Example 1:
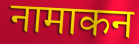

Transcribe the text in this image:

नामाकन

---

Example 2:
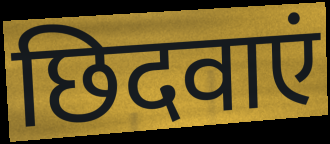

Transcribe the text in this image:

छिदवाएं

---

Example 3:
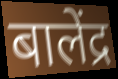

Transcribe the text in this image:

बालेंद्र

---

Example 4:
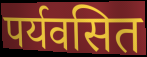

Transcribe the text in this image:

पर्यवसित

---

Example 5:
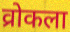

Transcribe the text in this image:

व्रोकला